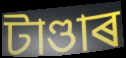
টাণ্ডাৰ